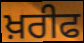
ਖ਼ਰੀਫ